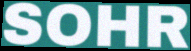
SOHR